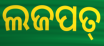
ଲଜପତ୍